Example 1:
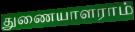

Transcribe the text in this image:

துணையாளராம்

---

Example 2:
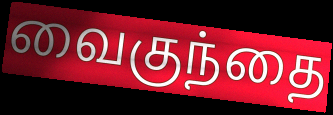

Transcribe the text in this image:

வைகுந்தை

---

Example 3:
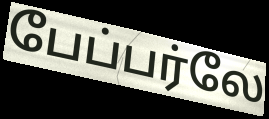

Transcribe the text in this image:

பேப்பர்லே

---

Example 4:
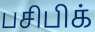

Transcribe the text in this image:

பசிபிக்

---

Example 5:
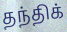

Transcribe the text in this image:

தந்திக்